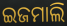
ଇଜମାଲି